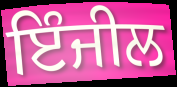
ਇੰਜੀਲ